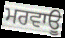
ਮਰਵਾਊ